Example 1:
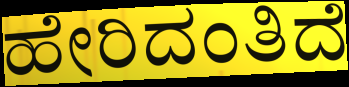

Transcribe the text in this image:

ಹೇರಿದಂತಿದೆ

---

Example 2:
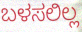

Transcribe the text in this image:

ಬಳಸಲಿಲ್ಲ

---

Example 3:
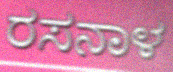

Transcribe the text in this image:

ರಸನಾಳ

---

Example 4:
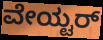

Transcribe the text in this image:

ವೇಯ್ಟರ್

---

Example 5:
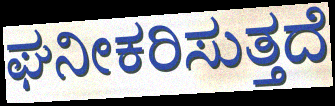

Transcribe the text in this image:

ಘನೀಕರಿಸುತ್ತದೆ